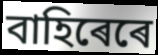
বাহিৰেৰে